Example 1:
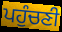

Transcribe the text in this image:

ਪਹੁੰਚਣੀ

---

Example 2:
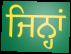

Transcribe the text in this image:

ਜਿਨ੍ਹਾਂ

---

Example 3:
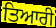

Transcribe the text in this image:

ਤਿਆਰੀ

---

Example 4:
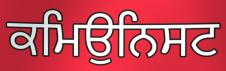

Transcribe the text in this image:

ਕਮਿਉਨਿਸਟ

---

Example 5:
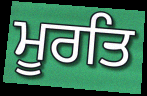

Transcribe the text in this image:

ਮੂਰਤਿ